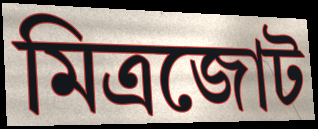
মিত্রজোট